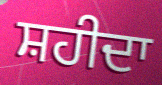
ਸ਼ਹੀਦਾ